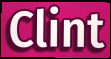
Clint